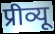
प्रीव्यू